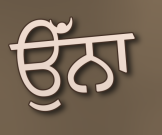
ਉਂੱਨਾ